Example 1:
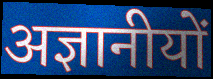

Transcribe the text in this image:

अज्ञानीयों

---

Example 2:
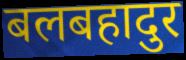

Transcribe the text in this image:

बलबहादुर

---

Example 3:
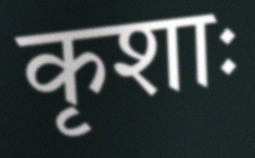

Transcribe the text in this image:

कृशाः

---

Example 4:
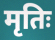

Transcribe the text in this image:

मृतिः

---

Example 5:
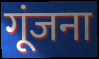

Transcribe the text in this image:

गूंजना